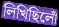
লিখিছিলোঁ